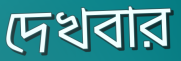
দেখবার